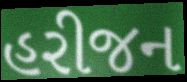
હરીજન